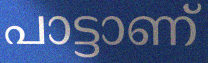
പാട്ടാണ്